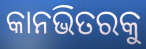
କାନଭିତରକୁ